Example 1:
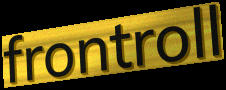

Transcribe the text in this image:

frontroll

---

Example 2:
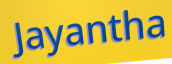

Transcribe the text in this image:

Jayantha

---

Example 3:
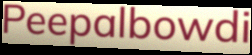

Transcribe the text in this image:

Peepalbowdi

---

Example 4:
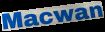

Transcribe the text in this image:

Macwan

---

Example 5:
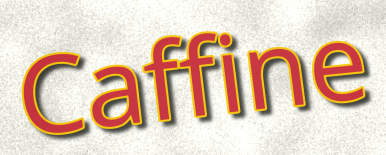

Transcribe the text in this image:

Caffine